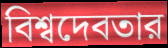
বিশ্বদেবতার